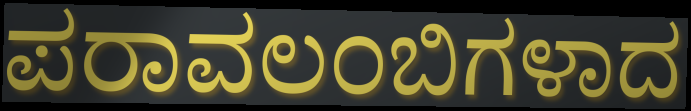
ಪರಾವಲಂಬಿಗಳಾದ